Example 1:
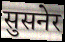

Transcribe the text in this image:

सुसनेर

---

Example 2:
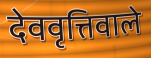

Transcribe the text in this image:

देववृत्तिवाले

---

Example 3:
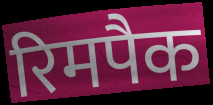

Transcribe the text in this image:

रिमपैक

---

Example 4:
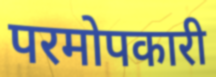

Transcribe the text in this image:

परमोपकारी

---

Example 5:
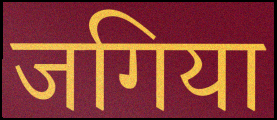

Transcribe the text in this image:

जगिया